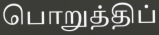
பொறுத்திப்